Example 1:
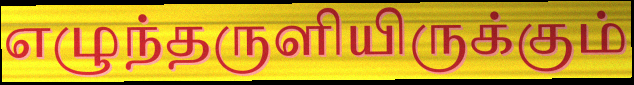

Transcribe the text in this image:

எழுந்தருளியிருக்கும்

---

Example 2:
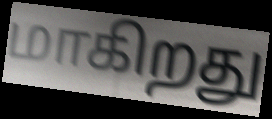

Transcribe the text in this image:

மாகிறது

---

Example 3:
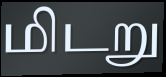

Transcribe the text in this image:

மிடறு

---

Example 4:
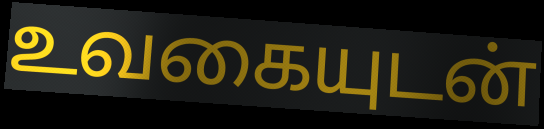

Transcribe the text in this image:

உவகையுடன்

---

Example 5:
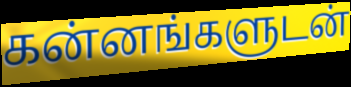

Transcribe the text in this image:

கன்னங்களுடன்